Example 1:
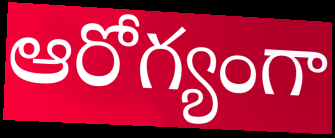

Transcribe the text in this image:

ఆరోగ్యంగా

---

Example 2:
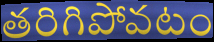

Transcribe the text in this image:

తరిగిపోవటం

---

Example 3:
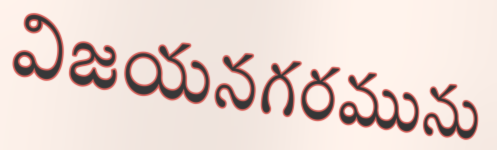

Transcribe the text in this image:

విజయనగరమును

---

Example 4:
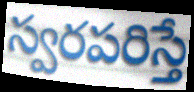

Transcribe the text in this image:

స్వరపరిస్తే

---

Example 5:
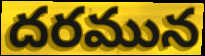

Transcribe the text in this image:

దరమున